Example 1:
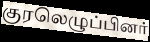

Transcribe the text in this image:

குரலெழுப்பினர்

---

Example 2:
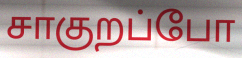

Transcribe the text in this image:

சாகுறப்போ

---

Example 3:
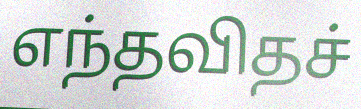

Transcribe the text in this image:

எந்தவிதச்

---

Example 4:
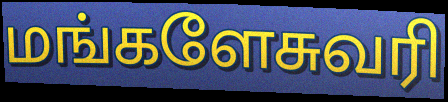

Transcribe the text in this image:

மங்களேசுவரி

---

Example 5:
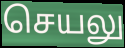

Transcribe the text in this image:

செயலு